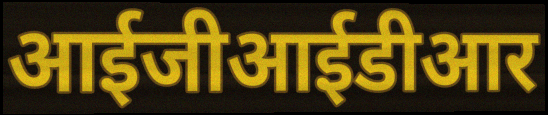
आईजीआईडीआर